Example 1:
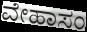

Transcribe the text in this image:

ವೇಹಾಸಂ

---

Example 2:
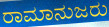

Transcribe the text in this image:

ರಾಮಾನುಜರು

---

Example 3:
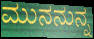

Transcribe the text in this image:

ಮುನನುನ್ನ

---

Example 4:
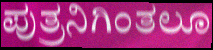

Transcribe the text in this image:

ಪುತ್ರನಿಗಿಂತಲೂ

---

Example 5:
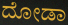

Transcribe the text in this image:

ದೋಡಾ